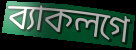
ব্যাকলগে